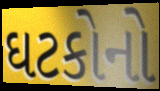
ઘટકોનો